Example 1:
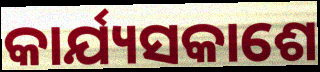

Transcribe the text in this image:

କାର୍ଯ୍ୟସକାଶେ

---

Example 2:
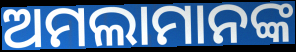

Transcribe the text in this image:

ଅମଲାମାନଙ୍କ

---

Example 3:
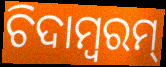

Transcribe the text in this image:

ଚିଦାମ୍ବରମ୍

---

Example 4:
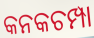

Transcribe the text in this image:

କନକଚମ୍ପା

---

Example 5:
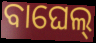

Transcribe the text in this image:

ବାଘେଲ୍